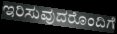
ಇರಿಸುವುದರೊಂದಿಗೆ